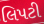
લિપટી